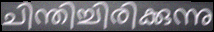
ചിന്തിച്ചിരിക്കുന്നു